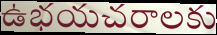
ఉభయచరాలకు